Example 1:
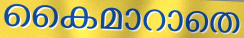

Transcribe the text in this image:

കൈമാറാതെ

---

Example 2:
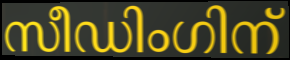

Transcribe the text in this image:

സീഡിംഗിന്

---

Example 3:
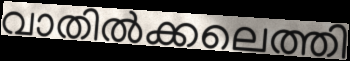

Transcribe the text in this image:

വാതിൽക്കലെത്തി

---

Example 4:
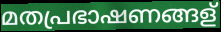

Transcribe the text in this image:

മതപ്രഭാഷണങ്ങള്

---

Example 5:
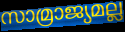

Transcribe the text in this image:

സാമ്രാജ്യമല്ല